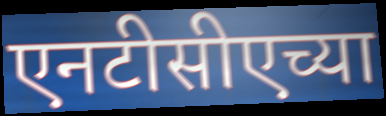
एनटीसीएच्या